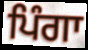
ਪਿੰਗਾ